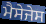
ਮੈਸੇਜੇਸ